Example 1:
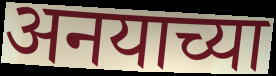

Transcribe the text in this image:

अनयाच्या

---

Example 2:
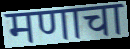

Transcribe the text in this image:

मणाचा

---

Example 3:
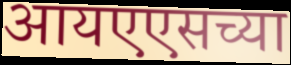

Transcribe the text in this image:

आयएएसच्या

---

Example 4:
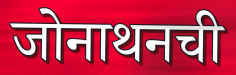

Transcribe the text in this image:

जोनाथनची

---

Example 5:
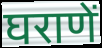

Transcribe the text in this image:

घराणें